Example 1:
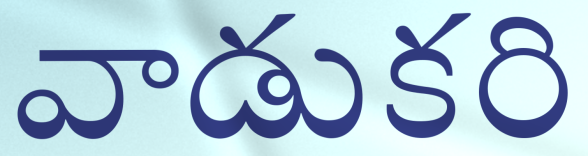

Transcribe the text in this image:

వాడుకరి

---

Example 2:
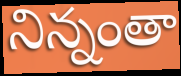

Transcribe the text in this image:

నిన్నంతా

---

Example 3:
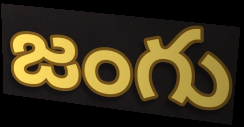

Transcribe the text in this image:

జంగు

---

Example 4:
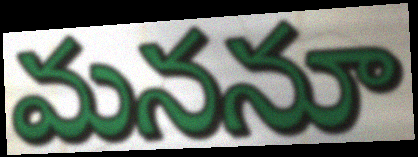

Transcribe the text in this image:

మననూ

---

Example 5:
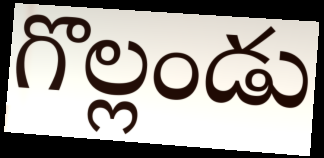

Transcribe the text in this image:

గొల్లండు